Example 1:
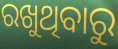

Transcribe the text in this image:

ରଖୁଥିବାରୁ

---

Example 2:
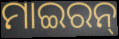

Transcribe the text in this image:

ମାଇରନ୍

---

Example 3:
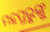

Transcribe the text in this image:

ମହପ୍ରଭୁଙ୍କୁ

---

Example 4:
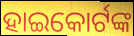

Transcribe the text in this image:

ହାଇକୋର୍ଟଙ୍କ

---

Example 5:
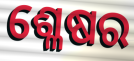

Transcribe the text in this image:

ଶ୍ଳେଷର